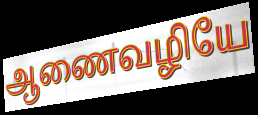
ஆணைவழியே